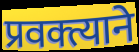
प्रवक्‍त्याने